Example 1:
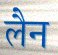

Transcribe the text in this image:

लैन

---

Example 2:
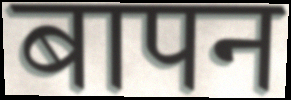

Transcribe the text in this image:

बापन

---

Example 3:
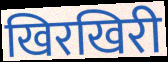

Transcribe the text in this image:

खिरखिरी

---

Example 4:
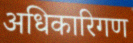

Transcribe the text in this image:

अधिकारिगण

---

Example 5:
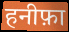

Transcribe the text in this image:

हनीफ़ा